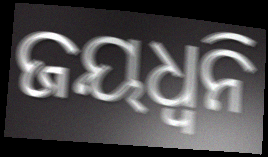
ଜୟଧ୍ଵନି